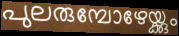
പുലരുമ്പോഴേയ്ക്കും